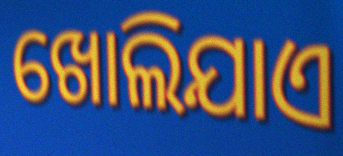
ଖୋଲିଯାଏ